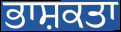
ਭਾਸ਼ਕਤਾ